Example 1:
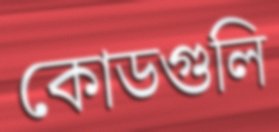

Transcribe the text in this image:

কোডগুলি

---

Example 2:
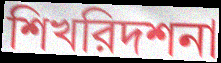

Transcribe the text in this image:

শিখরিদশনা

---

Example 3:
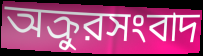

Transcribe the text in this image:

অক্রুরসংবাদ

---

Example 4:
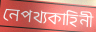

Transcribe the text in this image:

নেপথ্যকাহিনী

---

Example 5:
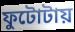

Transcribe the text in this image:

ফুটোটায়